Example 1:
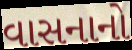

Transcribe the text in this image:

વાસનાનો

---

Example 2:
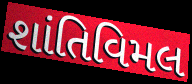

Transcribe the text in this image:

શાંતિવિમલ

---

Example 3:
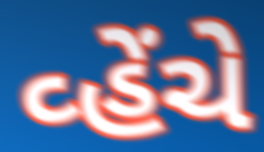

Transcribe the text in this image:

વ્હેંચે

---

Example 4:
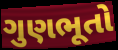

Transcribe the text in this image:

ગુણભૂતો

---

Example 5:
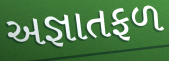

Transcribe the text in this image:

અજ્ઞાતફળ